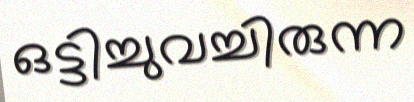
ഒട്ടിച്ചുവച്ചിരുന്ന